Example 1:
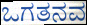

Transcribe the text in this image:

ಒಗತನವ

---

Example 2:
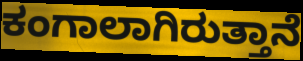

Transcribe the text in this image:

ಕಂಗಾಲಾಗಿರುತ್ತಾನೆ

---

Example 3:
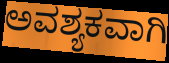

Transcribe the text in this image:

ಅವಶ್ಯಕವಾಗಿ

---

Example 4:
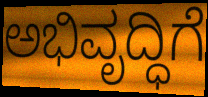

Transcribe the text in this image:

ಅಭಿವೃದ್ಧಿಗೆ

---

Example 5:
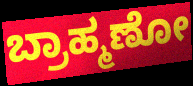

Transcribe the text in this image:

ಬ್ರಾಹ್ಮಣೋ